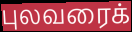
புலவரைக்